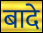
बादे